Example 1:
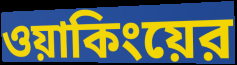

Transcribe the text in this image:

ওয়াকিংয়ের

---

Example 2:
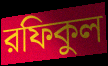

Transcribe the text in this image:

রফিকুল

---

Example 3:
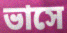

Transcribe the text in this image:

ভাসে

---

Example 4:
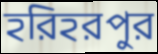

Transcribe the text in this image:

হরিহরপুর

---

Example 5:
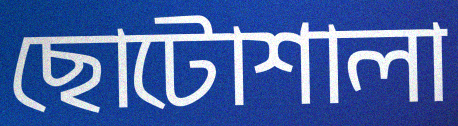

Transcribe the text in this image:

ছোটোশালা